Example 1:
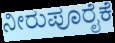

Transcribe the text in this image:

ನೀರುಪೂರೈಕೆ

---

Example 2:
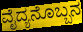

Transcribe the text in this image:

ವೈದ್ಯನೊಬ್ಬನ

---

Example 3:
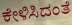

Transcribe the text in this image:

ಕೇಳಿಸಿದಂತೆ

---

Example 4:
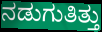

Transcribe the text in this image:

ನಡುಗುತಿತ್ತು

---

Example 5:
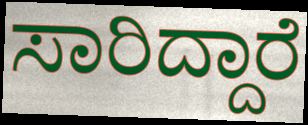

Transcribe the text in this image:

ಸಾರಿದ್ದಾರೆ